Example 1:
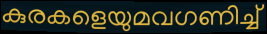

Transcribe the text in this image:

കുരകളെയുമവഗണിച്ച്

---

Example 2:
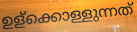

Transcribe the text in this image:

ഉള്ക്കൊള്ളുന്നത്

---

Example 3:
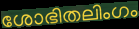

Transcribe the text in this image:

ശോഭിതലിംഗം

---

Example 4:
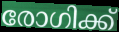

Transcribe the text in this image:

രോഗിക്ക്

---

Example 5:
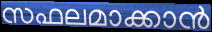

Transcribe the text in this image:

സഫലമാക്കാൻ